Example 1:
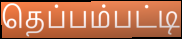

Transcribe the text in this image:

தெப்பம்பட்டி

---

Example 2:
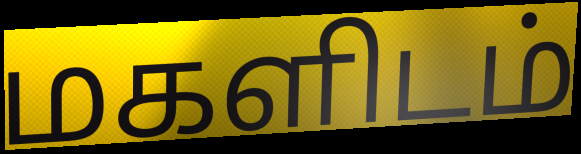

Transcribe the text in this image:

மகளிடம்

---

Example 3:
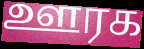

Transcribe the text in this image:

ஊரக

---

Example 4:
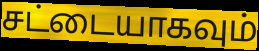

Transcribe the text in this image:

சட்டையாகவும்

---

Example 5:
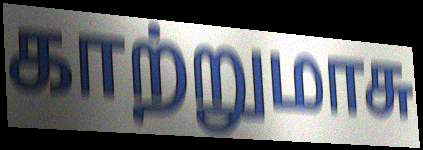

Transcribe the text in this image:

காற்றுமாசு